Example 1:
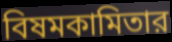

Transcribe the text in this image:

বিষমকামিতার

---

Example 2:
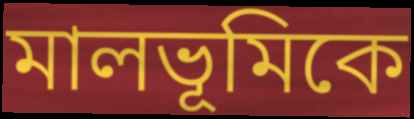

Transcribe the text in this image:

মালভূমিকে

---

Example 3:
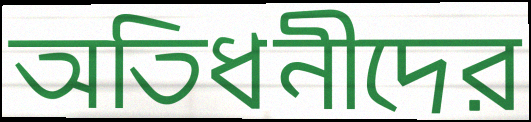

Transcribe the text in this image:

অতিধনীদের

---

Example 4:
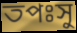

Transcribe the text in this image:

তপঃসু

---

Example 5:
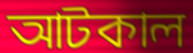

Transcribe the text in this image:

আটকাল